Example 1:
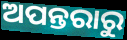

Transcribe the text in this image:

ଅପନ୍ତରାରୁ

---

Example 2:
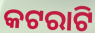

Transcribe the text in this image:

କଟରାଟି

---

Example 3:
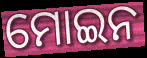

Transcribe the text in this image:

ମୋଇନ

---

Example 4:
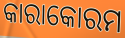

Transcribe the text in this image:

କାରାକୋରମ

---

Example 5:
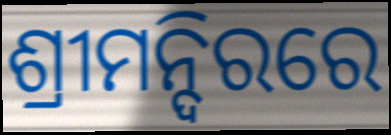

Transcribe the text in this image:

ଶ୍ରୀମନ୍ଦିରରେ